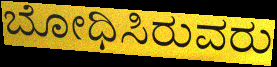
ಬೋಧಿಸಿರುವರು